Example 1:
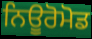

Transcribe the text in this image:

ਨਿਊਰੋਮੋਡ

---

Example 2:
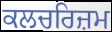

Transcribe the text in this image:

ਕਲਚਰਿਜ਼ਮ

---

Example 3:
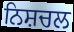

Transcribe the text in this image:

ਨਿਸ਼ਚਲ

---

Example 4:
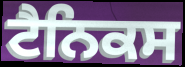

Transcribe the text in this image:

ਟੈਨਿਕਸ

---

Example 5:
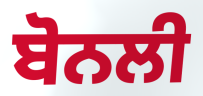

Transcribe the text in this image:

ਬੋਨਲੀ